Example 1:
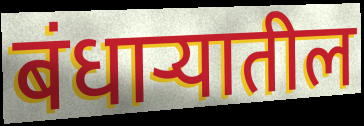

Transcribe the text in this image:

बंधाऱ्यातील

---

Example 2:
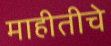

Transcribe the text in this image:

माहीतीचे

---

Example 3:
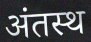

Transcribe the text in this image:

अंतस्थ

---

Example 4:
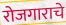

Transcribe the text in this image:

रोजगाराचे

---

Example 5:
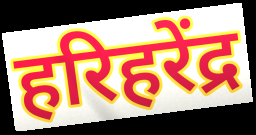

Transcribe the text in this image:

हरिहरेंद्र